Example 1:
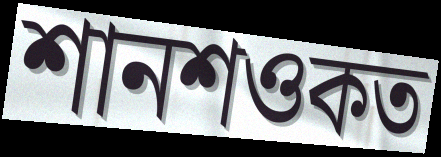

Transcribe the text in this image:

শানশওকত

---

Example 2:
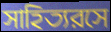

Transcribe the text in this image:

সাহিত্যরসে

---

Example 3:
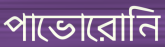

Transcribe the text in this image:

পাভোরোনি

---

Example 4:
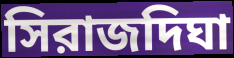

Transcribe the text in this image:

সিরাজদিঘা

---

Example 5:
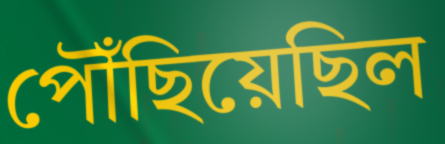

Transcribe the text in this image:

পৌঁছিয়েছিল